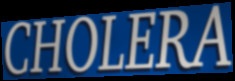
CHOLERA